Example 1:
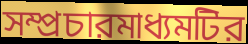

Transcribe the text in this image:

সম্প্রচারমাধ্যমটির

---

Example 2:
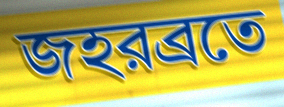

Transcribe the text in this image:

জহরব্রতে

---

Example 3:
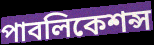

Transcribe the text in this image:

পাবলিকেশন্স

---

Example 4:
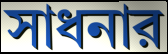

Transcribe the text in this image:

সাধনার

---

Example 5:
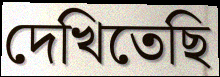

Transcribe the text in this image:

দেখিতেছি